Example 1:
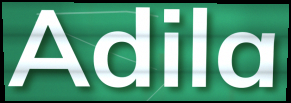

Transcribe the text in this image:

Adila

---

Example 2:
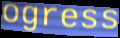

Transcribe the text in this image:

ogress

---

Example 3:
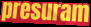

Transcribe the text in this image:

presuram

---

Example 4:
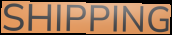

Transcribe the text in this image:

SHIPPING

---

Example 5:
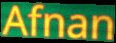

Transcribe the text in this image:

Afnan